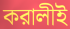
করালীই